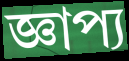
জ্ঞাপ্য